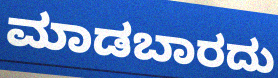
ಮಾಡಬಾರದು